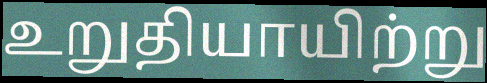
உறுதியாயிற்று